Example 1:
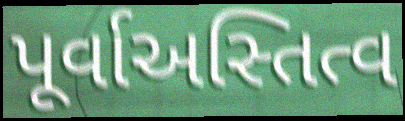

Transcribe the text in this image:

પૂર્વાઅસ્તિત્વ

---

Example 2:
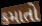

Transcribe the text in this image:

કમાતો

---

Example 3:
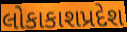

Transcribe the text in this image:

લોકાકાશપ્રદેશ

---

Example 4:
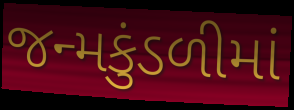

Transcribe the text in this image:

જન્મકુંડળીમાં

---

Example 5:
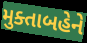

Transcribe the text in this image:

મુક્તાબહેને